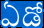
ఏడో